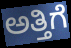
ಅತ್ತಿಗೆ